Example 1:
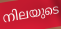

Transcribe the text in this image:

നിലയുടെ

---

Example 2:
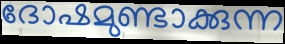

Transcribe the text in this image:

ദോഷമുണ്ടാക്കുന്ന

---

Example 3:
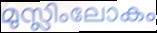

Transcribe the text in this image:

മുസ്ലിംലോകം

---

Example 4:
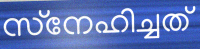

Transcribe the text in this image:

സ്‌നേഹിച്ചത്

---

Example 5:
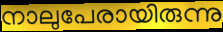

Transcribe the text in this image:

നാലുപേരായിരുന്നു